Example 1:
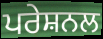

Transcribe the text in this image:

ਪਰੇਸ਼ਨਲ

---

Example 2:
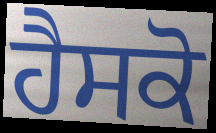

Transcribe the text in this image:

ਹੈਸਕੋ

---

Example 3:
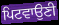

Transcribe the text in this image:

ਪਿਟਵਾਉਣੀ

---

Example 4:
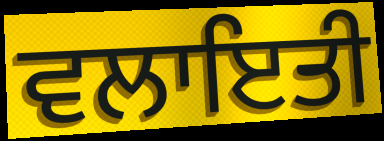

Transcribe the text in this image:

ਵਲਾਇਤੀ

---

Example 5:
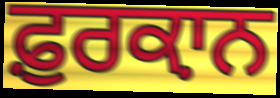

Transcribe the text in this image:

ਫ਼ੁਰਕ਼ਾਨ